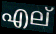
എല്